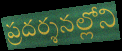
ప్రదర్శనల్లోని